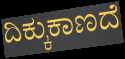
ದಿಕ್ಕುಕಾಣದೆ